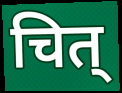
चित्